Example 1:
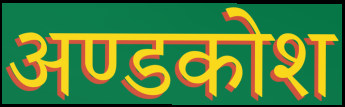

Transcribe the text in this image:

अण्डकोश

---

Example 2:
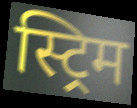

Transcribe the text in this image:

स्ट्रिम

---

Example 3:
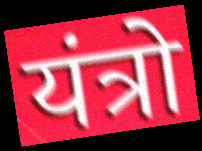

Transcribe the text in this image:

यंत्रो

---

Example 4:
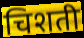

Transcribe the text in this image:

चिशती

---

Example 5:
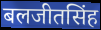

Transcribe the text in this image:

बलजीतसिंह